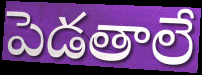
పెడతాలే